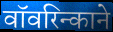
वॉवरिन्काने